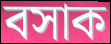
বসাক